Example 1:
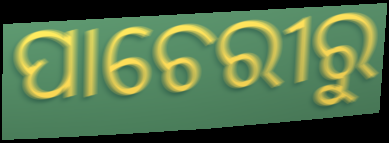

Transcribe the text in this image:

ପାଚେରୀରୁ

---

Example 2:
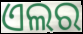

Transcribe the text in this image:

ଏଲର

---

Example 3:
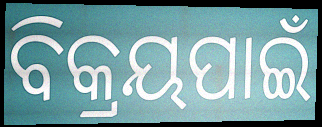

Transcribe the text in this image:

ବିକ୍ରୟପାଇଁ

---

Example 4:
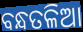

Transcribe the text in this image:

ବନ୍ଧତଳିଆ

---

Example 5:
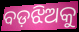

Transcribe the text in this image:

ବଡ଼ଝିଅକୁ